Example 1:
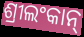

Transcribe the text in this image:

ଶ୍ରୀଲଂକାନ୍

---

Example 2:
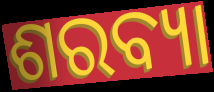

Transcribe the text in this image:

ଶରବ୍ୟା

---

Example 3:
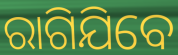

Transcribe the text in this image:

ରାଗିଯିବେ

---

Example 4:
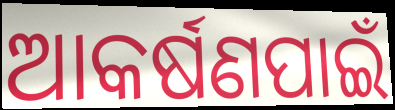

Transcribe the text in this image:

ଆକର୍ଷଣପାଇଁ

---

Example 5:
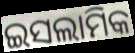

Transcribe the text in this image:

ଇସଲାମିକ